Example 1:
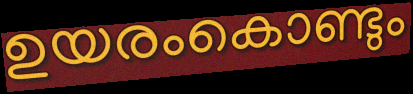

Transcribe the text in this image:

ഉയരംകൊണ്ടും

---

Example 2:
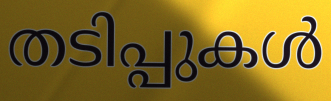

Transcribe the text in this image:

തടിപ്പുകൾ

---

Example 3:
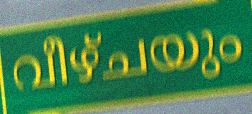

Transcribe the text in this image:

വീഴ്ചയും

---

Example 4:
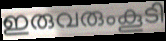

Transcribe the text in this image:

ഇരുവരുംകൂടി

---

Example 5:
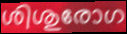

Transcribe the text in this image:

ശിശുരോഗ